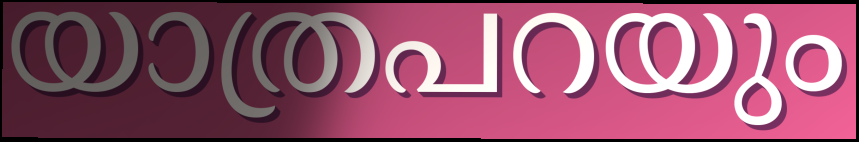
യാത്രപറയും